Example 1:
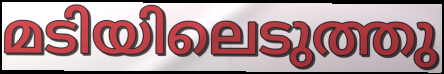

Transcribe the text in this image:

മടിയിലെടുത്തു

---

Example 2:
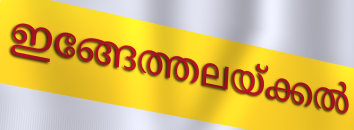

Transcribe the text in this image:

ഇങ്ങേത്തലയ്ക്കൽ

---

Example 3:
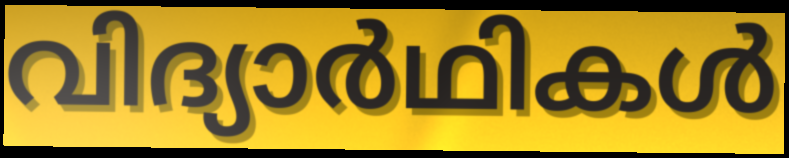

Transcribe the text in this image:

വിദ്യാർഥികൾ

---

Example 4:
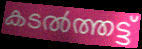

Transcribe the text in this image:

കടൽത്തട്ട്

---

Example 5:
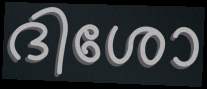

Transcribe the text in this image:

ദിശോ